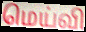
மெய்வி